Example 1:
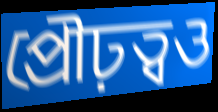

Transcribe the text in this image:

প্রৌঢ়ত্বও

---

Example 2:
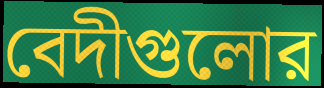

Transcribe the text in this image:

বেদীগুলোর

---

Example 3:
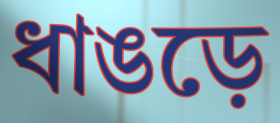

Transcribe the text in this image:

ধাঙড়ে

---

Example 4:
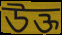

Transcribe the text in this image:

উক্ত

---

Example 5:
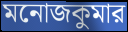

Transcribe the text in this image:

মনোজকুমার